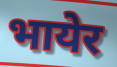
भायेर